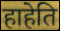
हाहेति